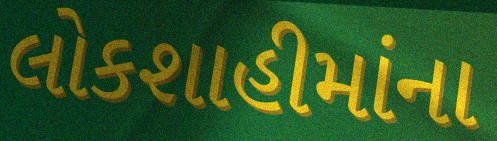
લોકશાહીમાંના